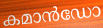
കമാൻഡോ